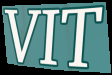
VIT